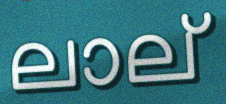
ലാല്